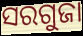
ସରଗୁଜା